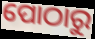
ପୋଠାରୁ